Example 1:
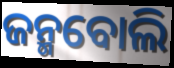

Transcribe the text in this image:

ଜନ୍ମବୋଲି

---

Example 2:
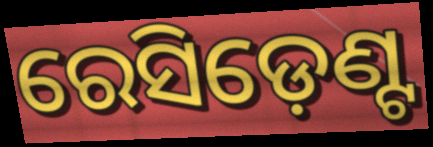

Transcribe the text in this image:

ରେସିଡ଼େଣ୍ଟ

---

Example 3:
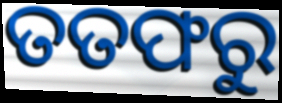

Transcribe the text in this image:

ତତଫରୁ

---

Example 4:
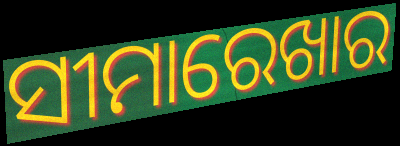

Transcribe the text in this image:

ସୀମାରେଖାର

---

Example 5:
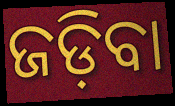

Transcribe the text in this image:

ଜଡ଼ିବା